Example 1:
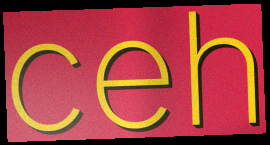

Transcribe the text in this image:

ceh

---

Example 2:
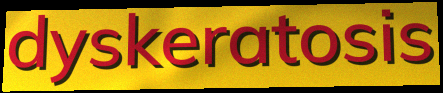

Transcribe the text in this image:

dyskeratosis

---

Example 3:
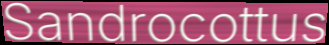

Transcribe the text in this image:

Sandrocottus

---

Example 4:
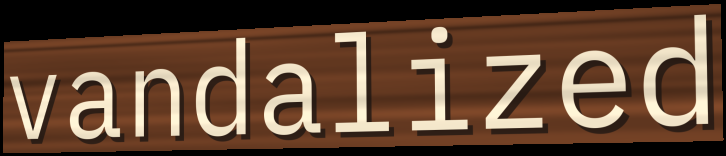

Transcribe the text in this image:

vandalized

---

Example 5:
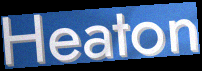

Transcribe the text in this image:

Heaton